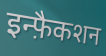
इन्फ़ैकशन